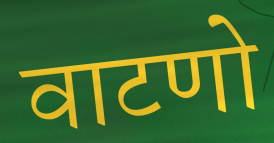
वाटणो